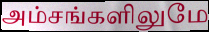
அம்சங்களிலுமே